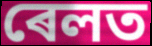
ৰেলত